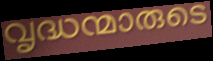
വൃദ്ധന്മാരുടെ